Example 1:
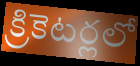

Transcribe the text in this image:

క్రికెటర్లలో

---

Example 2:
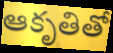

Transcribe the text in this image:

ఆకృతితో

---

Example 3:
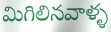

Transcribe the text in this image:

మిగిలినవాళ్ళ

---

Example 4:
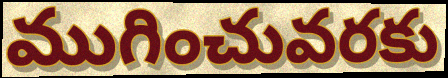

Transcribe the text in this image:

ముగించువరకు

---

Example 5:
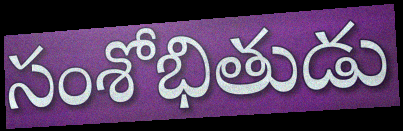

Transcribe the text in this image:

సంశోభితుడు